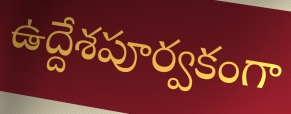
ఉద్దేశపూర్వకంగా